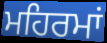
ਮਹਿਰਮਾਂ